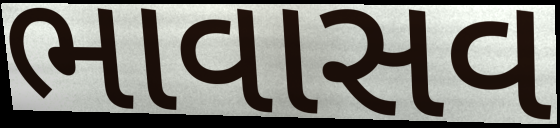
ભાવાસવ